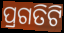
ପ୍ରଗତିଟି